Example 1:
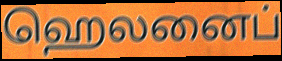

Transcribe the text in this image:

ஹெலனைப்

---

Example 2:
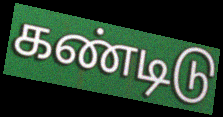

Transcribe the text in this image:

கண்டிடு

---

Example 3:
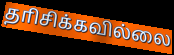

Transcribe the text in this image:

தரிசிக்கவில்லை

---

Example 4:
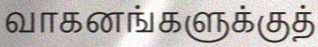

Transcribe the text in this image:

வாகனங்களுக்குத்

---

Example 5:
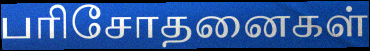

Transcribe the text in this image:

பரிசோதனைகள்